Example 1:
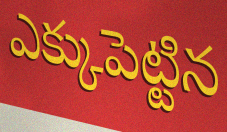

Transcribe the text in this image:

ఎక్కుపెట్టిన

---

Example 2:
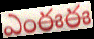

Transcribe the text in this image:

ఎంఈఈ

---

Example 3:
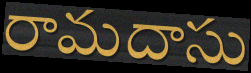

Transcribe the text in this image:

రామదాసు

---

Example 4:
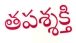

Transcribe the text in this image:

తపశ్శక్తి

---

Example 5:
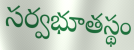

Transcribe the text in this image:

సర్వభూతస్థం